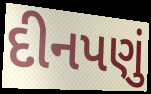
દીનપણું